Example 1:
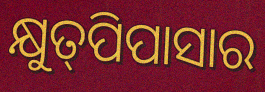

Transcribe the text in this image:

କ୍ଷୁତ୍‍ପିପାସାର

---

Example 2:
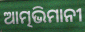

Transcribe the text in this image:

ଆତ୍ମଭିମାନୀ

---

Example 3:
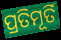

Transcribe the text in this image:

ପ୍ରତିମୂର୍ତି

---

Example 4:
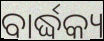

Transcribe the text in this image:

ବାର୍ଦ୍ଧକ୍ୟ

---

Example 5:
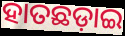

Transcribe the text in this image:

ହାତଛଡ଼ାଇ